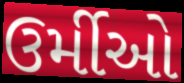
ઉર્મીઓ